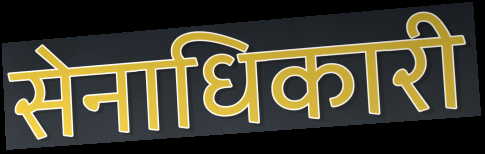
सेनाधिकारी